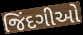
જિંદગીઓ